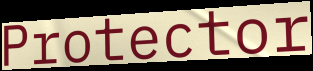
Protector